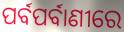
ପର୍ବପର୍ବାଣୀରେ